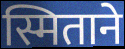
स्मिताने